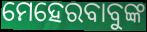
ମେହେରବାବୁଙ୍କ